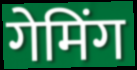
गेमिंग